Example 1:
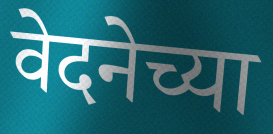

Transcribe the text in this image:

वेदनेच्या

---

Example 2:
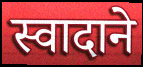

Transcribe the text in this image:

स्वादाने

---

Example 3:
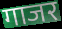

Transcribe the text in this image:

गाजर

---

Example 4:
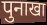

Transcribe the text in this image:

पुनाखा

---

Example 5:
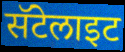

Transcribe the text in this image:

सॅटेलाइट